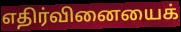
எதிர்வினையைக்